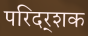
परिदर्शक